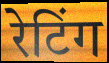
रेटिंग